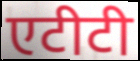
एटीटी